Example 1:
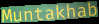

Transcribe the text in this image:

Muntakhab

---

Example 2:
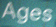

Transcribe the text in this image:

Ages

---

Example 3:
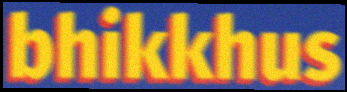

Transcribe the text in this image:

bhikkhus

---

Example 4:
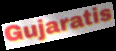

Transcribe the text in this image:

Gujaratis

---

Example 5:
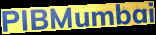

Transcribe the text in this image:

PIBMumbai